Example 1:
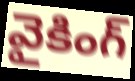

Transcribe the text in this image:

వైకింగ్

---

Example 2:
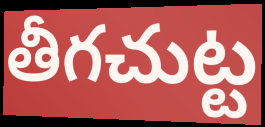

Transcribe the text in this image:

తీగచుట్ట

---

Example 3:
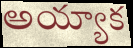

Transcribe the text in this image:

అయ్యాక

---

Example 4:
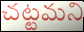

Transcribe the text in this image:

చట్టమని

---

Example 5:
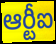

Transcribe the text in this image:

ఆర్టీఐ